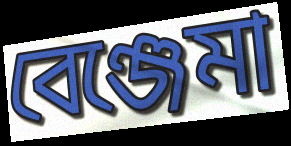
বেঞ্জেমা